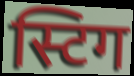
स्टिग